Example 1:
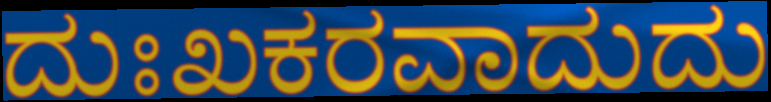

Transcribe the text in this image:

ದುಃಖಕರವಾದುದು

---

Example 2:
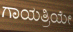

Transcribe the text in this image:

ಗಾಯತ್ರಿಯೇ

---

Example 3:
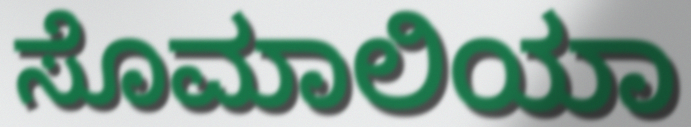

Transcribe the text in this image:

ಸೊಮಾಲಿಯಾ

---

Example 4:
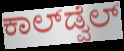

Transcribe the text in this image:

ಕಾಲ್‌ಡ್ವೆಲ್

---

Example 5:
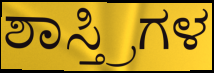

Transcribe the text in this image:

ಶಾಸ್ತ್ರಿಗಳ